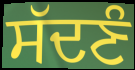
ਸੱਦਣੰ